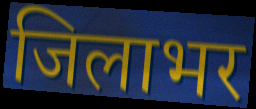
जिलाभर